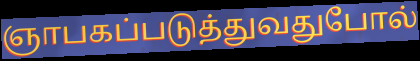
ஞாபகப்படுத்துவதுபோல்